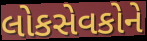
લોકસેવકોને